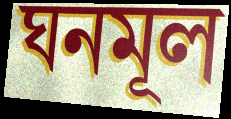
ঘনমূল